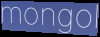
mongol